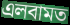
এলবামত